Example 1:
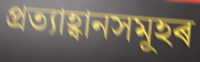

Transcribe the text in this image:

প্ৰত্যাহ্বানসমূহৰ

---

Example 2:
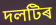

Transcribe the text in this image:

দলটিৰ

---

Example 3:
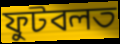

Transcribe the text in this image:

ফুটবলত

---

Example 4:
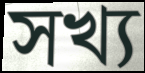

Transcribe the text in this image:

সখ্য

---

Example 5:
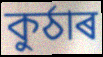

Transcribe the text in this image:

কুঠাৰ